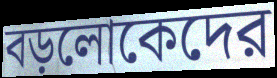
বড়লোকেদের